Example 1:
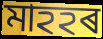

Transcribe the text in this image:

মাহহৰ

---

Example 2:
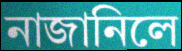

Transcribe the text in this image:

নাজানিলে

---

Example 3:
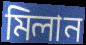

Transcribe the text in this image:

মিলান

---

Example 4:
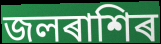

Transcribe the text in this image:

জলৰাশিৰ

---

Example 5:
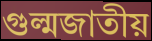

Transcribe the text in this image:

গুল্মজাতীয়